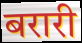
बरारी